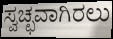
ಸ್ವಚ್ಛವಾಗಿರಲು